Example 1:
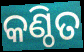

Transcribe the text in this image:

କଣ୍ଠିତ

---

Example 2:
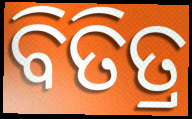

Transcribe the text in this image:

ବିତିତ୍ର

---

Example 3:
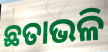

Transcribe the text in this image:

ଛତାଭଳି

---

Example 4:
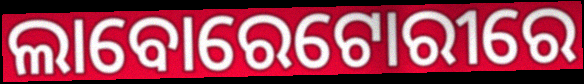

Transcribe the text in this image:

ଲାବୋରେଟୋରୀରେ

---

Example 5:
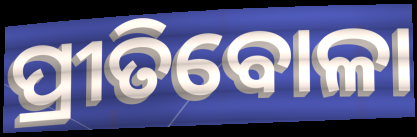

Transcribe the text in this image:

ପ୍ରୀତିବୋଳା